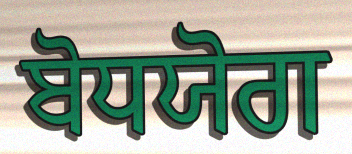
ਬੋਧਯੋਗ